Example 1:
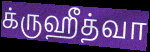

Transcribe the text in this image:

க்ருஹீத்வா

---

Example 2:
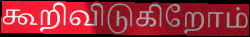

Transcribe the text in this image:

கூறிவிடுகிறோம்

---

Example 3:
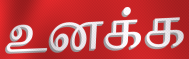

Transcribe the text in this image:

உனக்க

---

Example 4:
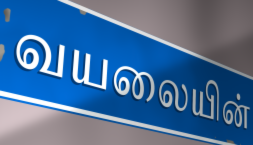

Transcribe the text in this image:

வயலையின்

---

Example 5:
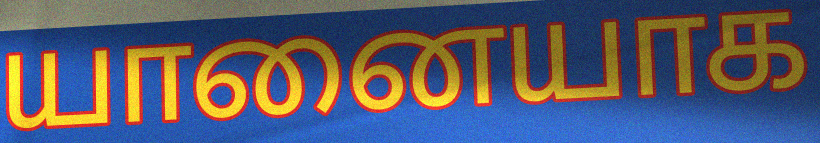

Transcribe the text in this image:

யானையாக